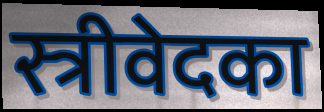
स्त्रीवेदका